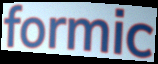
formic